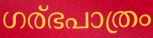
ഗര്ഭപാത്രം